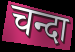
चन्दा